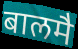
बालमै